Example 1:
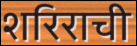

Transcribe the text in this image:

शरिराची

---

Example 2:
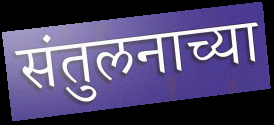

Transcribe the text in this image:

संतुलनाच्या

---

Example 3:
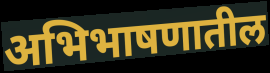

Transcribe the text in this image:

अभिभाषणातील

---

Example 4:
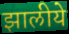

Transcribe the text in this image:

झालीये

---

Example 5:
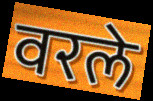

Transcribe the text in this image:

वरले